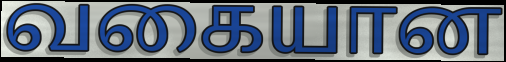
வகையான